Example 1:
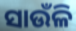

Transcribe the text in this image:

ସାଉଁଳି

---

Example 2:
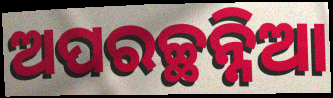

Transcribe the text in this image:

ଅପରଚ୍ଛନ୍ନିଆ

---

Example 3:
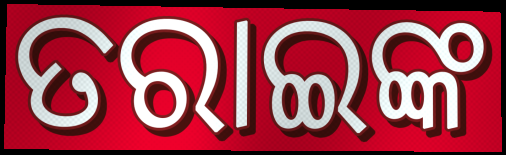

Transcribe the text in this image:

ତରାଇଙ୍କ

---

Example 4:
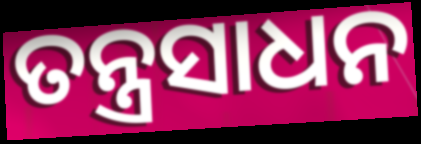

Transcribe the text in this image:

ତନ୍ତ୍ରସାଧନ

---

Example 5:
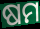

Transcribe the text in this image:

ଷମ